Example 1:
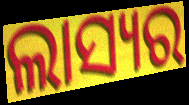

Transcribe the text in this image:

ଲାସ୍ୟର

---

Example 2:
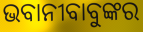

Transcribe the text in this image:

ଭବାନୀବାବୁଙ୍କର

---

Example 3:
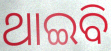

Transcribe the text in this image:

ଥାଇବି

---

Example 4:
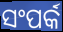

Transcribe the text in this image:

ସଂପର୍କ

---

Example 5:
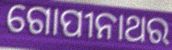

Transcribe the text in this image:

ଗୋପୀନାଥର